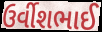
ઉર્વીશભાઈ